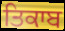
ਤਿਕਾਬ